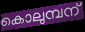
കൊലുമ്പന്